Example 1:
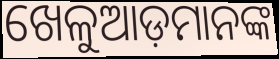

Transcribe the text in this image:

ଖେଳୁଆଡ଼ମାନଙ୍କ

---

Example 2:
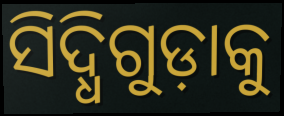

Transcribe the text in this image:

ସିଦ୍ଧିଗୁଡ଼ାକୁ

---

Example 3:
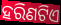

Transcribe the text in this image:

ହରିଣଟିଏ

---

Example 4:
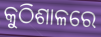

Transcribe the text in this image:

କୁଠିଶାଳରେ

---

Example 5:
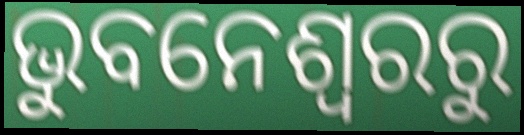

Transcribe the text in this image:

ଭୁବନେଶ୍ୱରରୁ